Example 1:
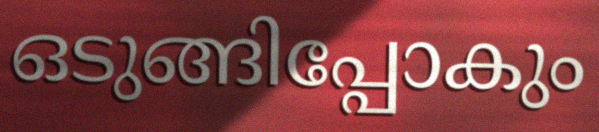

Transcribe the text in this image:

ഒടുങ്ങിപ്പോകും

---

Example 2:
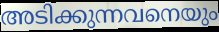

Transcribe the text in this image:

അടിക്കുന്നവനെയും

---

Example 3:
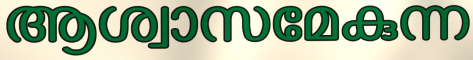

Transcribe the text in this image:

ആശ്വാസമേകുന്ന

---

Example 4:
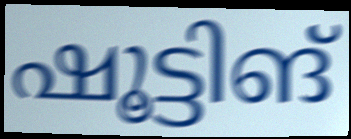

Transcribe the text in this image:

ഷൂട്ടിങ്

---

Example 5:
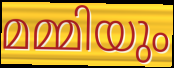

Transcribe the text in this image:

മമ്മിയും